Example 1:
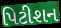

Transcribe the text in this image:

પિટીશન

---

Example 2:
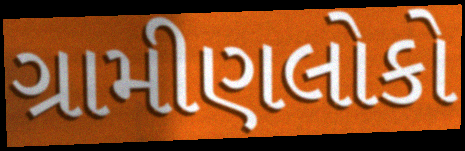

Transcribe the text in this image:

ગ્રામીણલોકો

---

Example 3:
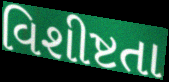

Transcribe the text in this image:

વિશીષ્ટતા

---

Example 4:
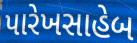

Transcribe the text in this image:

પારેખસાહેબ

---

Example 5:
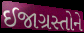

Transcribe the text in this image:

ઈજાગ્રસ્તોને